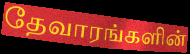
தேவாரங்களின்